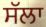
ਸੱਲਾ